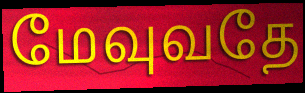
மேவுவதே